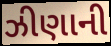
ઝીણાની